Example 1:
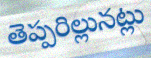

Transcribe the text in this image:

తెప్పరిల్లునట్లు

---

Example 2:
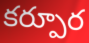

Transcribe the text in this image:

కర్పూర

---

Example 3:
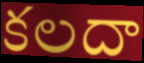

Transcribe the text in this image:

కలదా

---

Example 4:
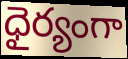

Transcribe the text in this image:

ధైర్యంగా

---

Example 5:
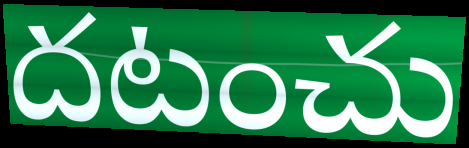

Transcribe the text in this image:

దటంచు